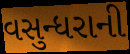
વસુન્ધરાની